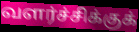
வளர்ச்சிக்குக்